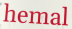
hemal